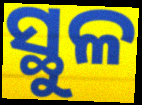
ସ୍ଥୁଳ